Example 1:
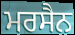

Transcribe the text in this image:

ਮਰਸੈਨ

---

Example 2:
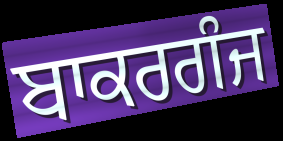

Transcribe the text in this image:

ਬਾਕਰਗੰਜ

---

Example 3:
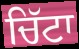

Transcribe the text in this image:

ਚਿੱਟਾ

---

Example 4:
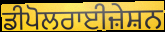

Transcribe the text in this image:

ਡੀਪੋਲਰਾਈਜ਼ੇਸ਼ਨ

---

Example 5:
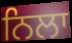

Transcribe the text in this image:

ਨਿਲਾ